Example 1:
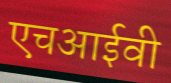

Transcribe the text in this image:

एचआईवी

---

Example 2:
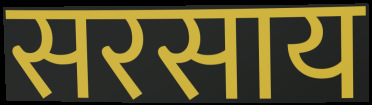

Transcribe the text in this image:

सरसाय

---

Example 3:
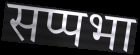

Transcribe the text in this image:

सप्पभा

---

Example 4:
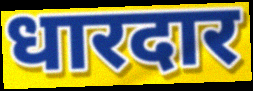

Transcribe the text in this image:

धारदार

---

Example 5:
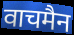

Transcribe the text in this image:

वाचमैन